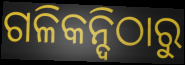
ଗଳିକନ୍ଦିଠାରୁ